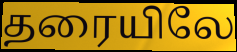
தரையிலே